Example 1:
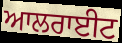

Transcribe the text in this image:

ਆਲਰਾਈਟ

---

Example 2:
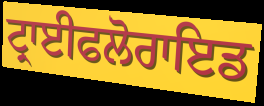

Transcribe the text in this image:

ਟ੍ਰਾਈਫਲੋਰਾਇਡ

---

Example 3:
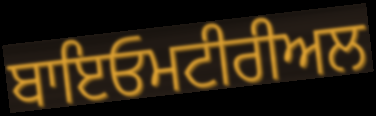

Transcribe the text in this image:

ਬਾਇਓਮਟੀਰੀਅਲ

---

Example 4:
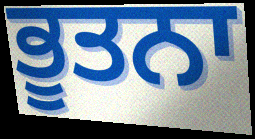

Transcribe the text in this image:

ਭੂਤਨਾ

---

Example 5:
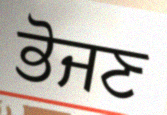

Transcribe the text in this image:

ਭੋਜਣ